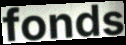
fonds